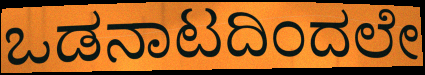
ಒಡನಾಟದಿಂದಲೇ